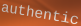
authentic